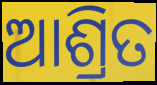
ଆଶ୍ରିତ